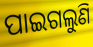
ପାଇଗଲୁଣି